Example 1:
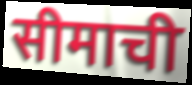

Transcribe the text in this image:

सीमाची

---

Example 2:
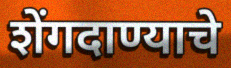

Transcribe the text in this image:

शेंगदाण्याचे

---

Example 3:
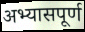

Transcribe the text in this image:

अभ्यासपूर्ण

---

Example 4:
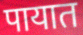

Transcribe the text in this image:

पायात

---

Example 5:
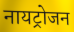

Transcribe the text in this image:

नायट्रोजन